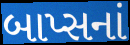
બાપ્સનાં